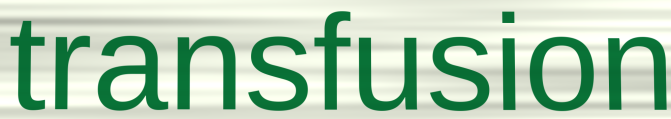
transfusion